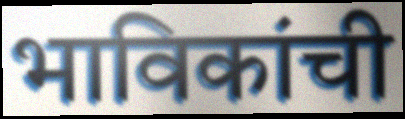
भाविकांची